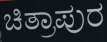
ಚಿತ್ರಾಪುರ